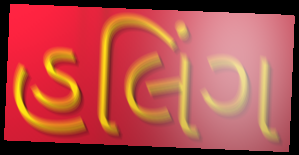
હલિંગ